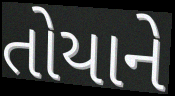
તોયાને